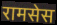
रामसेस